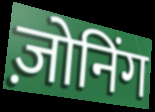
ज़ोनिंग